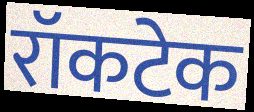
रॉकटेक